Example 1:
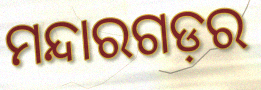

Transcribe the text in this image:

ମନ୍ଦାରଗଡ଼ର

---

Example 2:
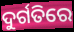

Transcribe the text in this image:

ଦୁର୍ଗତିରେ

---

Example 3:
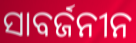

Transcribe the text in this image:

ସାବର୍ଜନୀନ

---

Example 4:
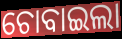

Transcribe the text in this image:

ଚୋବାଇଲା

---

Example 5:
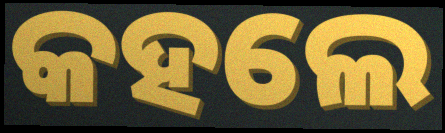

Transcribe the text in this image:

କହଲେ